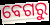
ବେଗରୁ